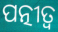
ପତ୍ନୀତ୍ୱ